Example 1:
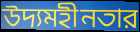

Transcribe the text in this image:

উদ্যমহীনতার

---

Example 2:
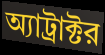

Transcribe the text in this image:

অ্যাট্রাক্টর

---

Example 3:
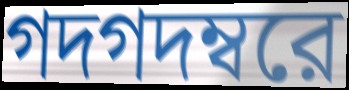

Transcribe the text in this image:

গদগদম্বরে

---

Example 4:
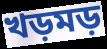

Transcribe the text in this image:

খড়মড়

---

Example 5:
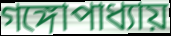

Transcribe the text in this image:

গঙ্গোপাধ্যায়